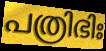
പത്രിഭിഃ